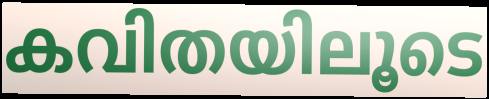
കവിതയിലൂടെ